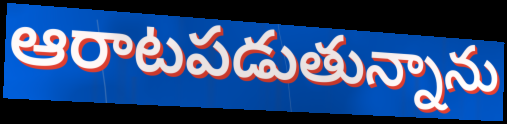
ఆరాటపడుతున్నాను